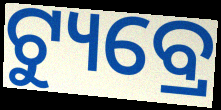
ଟ୍ୟୁବ୍ରେ